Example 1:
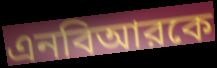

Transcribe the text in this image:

এনবিআরকে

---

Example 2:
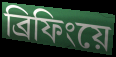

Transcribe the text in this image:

ব্রিফিংয়ে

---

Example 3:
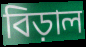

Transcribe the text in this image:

বিড়াল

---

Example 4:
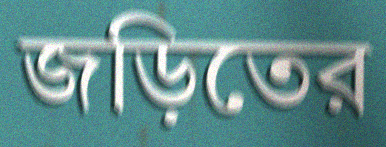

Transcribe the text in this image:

জড়িতের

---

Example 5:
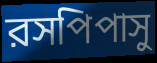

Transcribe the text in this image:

রসপিপাসু